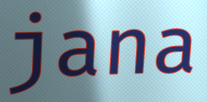
jana